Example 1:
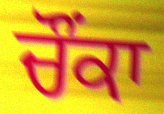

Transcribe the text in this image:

ਚੌਂਕਾ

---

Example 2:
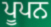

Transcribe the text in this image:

ਪੂਪਨ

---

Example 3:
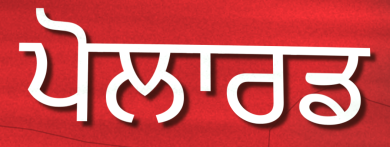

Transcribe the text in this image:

ਪੋਲਾਰਡ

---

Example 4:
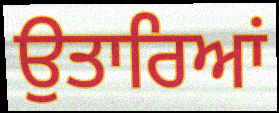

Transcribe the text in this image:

ਉਤਾਰਿਆਂ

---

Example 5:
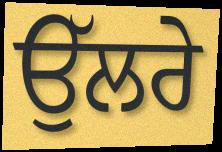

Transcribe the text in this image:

ਉੱਲਰੇ